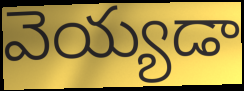
వెయ్యడా